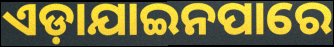
ଏଡ଼ାଯାଇନପାରେ